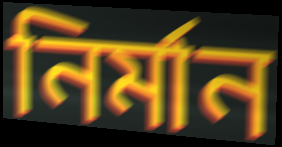
নির্মান